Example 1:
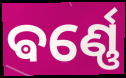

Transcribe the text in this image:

ଵର୍ଣ୍ଣେ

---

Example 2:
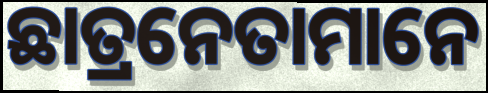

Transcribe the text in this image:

ଛାତ୍ରନେତାମାନେ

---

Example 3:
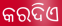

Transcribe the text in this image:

କରଦିଏ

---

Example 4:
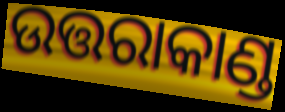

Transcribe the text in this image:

ଉତ୍ତରାକାଣ୍ଡ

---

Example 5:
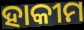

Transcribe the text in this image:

ହାକୀମ